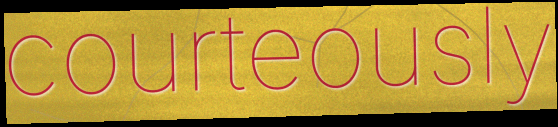
courteously